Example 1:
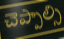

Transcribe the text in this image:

చెప్పాల్సి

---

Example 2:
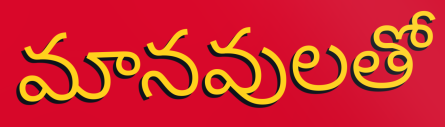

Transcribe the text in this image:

మానవులతో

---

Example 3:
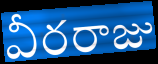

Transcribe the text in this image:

వీరరాజు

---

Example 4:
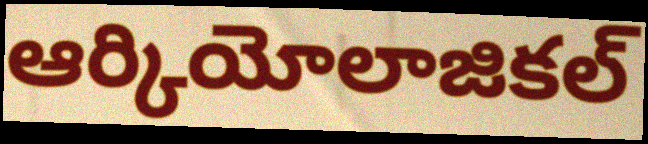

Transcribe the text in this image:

ఆర్కియోలాజికల్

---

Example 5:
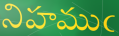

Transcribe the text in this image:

నిహముఁ